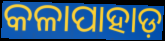
କଳାପାହାଡ଼